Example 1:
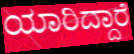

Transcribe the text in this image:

ಯಾರಿದ್ದಾರೆ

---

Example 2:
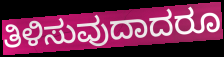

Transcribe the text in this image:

ತಿಳಿಸುವುದಾದರೂ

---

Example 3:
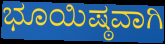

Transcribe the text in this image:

ಭೂಯಿಷ್ಠವಾಗಿ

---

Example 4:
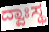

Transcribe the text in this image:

ದ್ವಾಃಸ್ಥ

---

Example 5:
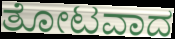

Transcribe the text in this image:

ತೋಟವಾದ